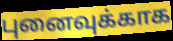
புனைவுக்காக